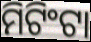
ମିଟିଂଟା